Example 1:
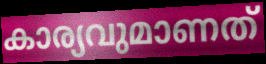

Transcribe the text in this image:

കാര്യവുമാണത്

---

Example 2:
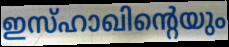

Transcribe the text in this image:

ഇസ്ഹാഖിന്റെയും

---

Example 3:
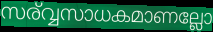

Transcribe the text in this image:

സര്വ്വസാധകമാണല്ലോ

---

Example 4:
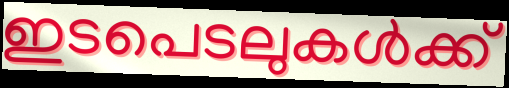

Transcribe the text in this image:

ഇടപെടലുകൾക്ക്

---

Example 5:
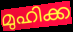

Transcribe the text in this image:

മുഹിക്ക